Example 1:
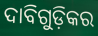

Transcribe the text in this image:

ଦାବିଗୁଡ଼ିକର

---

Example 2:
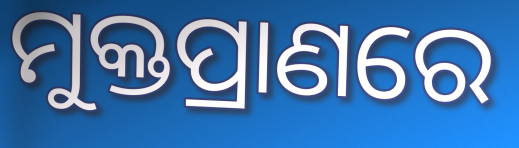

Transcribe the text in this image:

ମୁକ୍ତପ୍ରାଣରେ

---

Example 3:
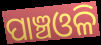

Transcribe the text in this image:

ପାଞ୍ଚଓଳି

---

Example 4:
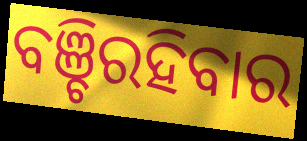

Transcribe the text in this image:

ବଞ୍ଚିରହିବାର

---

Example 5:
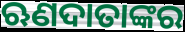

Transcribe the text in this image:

ଋଣଦାତାଙ୍କର